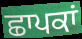
ਛਾਪਕਾਂ